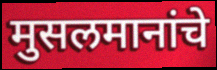
मुसलमानांचे